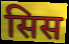
सिस